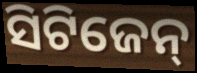
ସିଟିଜେନ୍